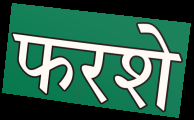
फरशे